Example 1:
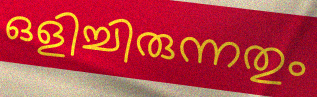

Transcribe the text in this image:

ഒളിച്ചിരുന്നതും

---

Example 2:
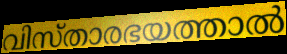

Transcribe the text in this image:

വിസ്താരഭയത്താൽ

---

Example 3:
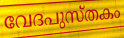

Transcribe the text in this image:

വേദപുസ്തകം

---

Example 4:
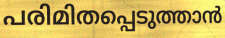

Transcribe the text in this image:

പരിമിതപ്പെടുത്താൻ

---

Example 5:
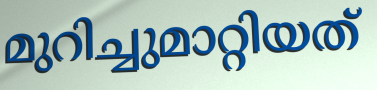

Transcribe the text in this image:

മുറിച്ചുമാറ്റിയത്